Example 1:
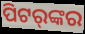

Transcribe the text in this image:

ପିଟର୍‌ଙ୍କର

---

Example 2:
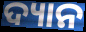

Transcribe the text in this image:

ଦ୍ୟାନ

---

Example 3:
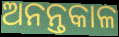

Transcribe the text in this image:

ଅନନ୍ତକାଳ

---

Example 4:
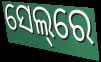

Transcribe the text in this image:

ସେଲ୍‌ରେ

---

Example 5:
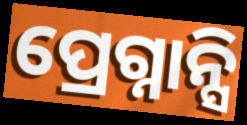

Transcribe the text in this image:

ପ୍ରେଗ୍ନାନ୍ସି